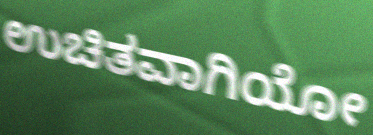
ಉಚಿತವಾಗಿಯೋ